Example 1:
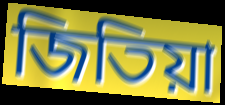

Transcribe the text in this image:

জিতিয়া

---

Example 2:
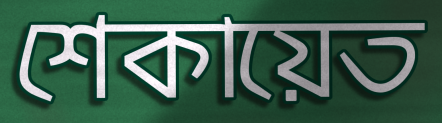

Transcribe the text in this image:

শেকায়েত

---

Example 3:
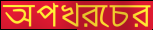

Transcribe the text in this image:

অপখরচের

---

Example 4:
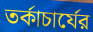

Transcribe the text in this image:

তর্কাচার্যের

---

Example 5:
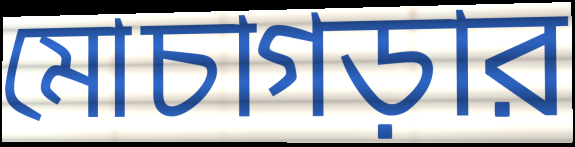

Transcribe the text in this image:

মোচাগড়ার